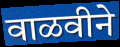
वाळवीने